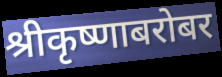
श्रीकृष्णाबरोबर